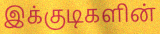
இக்குடிகளின்